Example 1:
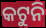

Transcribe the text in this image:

କଟୁନି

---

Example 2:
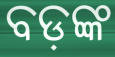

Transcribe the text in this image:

ବଡ଼ଙ୍କ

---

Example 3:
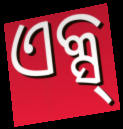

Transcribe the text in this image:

ଏକ୍ସ୍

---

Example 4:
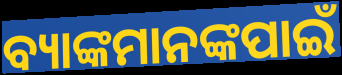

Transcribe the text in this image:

ବ୍ୟାଙ୍କମାନଙ୍କପାଇଁ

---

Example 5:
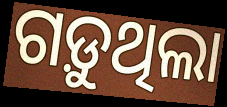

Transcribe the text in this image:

ଗଡ଼ୁଥିଲା